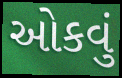
ઓકવું